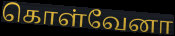
கொள்வேனா